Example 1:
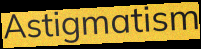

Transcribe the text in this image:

Astigmatism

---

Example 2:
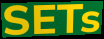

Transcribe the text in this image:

SETs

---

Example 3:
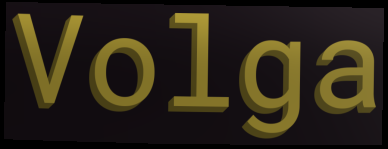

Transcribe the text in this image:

Volga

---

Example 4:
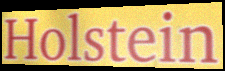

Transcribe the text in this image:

Holstein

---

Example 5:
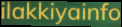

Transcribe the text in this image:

ilakkiyainfo